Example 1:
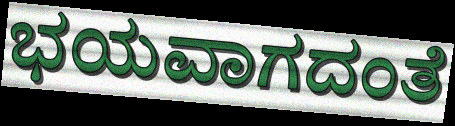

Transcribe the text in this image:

ಭಯವಾಗದಂತೆ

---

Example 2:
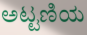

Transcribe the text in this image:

ಅಟ್ಟಣಿಯ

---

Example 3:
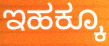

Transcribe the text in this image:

ಇಹಕ್ಕೂ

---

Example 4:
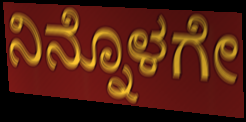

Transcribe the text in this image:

ನಿನ್ನೊಳಗೇ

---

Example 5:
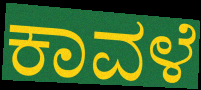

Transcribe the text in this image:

ಕಾವಳೆ